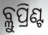
ବ୍ଲୁପ୍ରିଣ୍ଟ